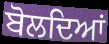
ਬੋਲਦਿਆਂ